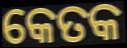
କେତକ